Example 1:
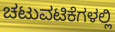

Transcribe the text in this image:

ಚಟುವಟಿಕೆಗಳಲ್ಲಿ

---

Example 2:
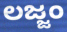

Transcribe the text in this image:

ಲಜ್ಜಂ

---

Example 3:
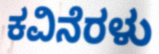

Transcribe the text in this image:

ಕವಿನೆರಳು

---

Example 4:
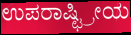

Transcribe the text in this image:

ಉಪರಾಷ್ಟ್ರೀಯ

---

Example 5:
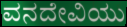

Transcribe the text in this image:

ವನದೇವಿಯು